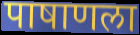
पाषाणला